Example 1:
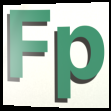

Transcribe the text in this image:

Fp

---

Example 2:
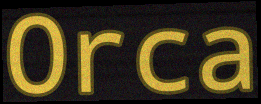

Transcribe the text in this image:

Orca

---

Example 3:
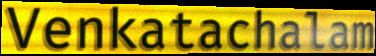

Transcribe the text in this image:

Venkatachalam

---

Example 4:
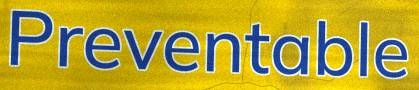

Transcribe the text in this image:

Preventable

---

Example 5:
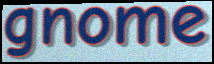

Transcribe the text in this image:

gnome